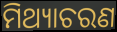
ମିଥ୍ୟାଚରଣ